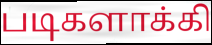
படிகளாக்கி